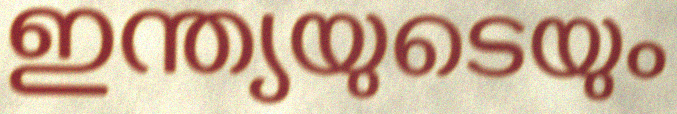
ഇന്ത്യയുടെയും